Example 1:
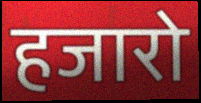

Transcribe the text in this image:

हजारो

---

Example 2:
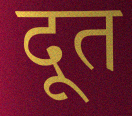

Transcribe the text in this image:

दूत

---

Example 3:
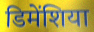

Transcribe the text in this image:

डिमेंशिया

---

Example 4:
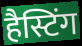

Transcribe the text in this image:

हैस्टिंग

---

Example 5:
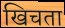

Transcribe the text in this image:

खिचता